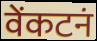
वेंकटनं